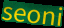
seoni